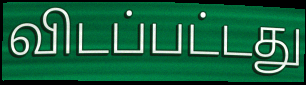
விடப்பட்டது